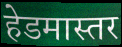
हेडमास्तर